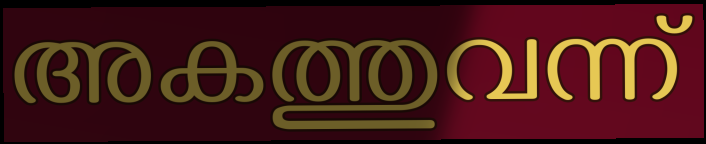
അകത്തുവന്ന്